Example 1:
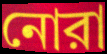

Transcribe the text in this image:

নোরা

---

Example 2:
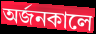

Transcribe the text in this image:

অর্জনকালে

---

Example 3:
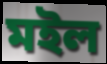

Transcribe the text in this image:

মইল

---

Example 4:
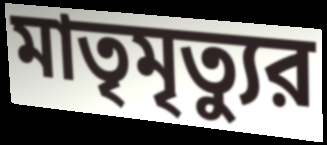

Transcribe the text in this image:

মাতৃমৃত্যুর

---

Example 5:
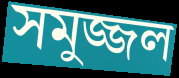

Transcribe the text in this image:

সমুজ্জল